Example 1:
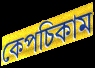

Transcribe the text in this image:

কেপচিকাম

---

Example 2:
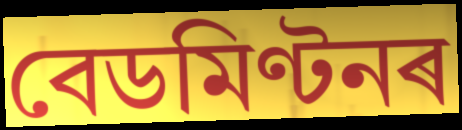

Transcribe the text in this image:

বেডমিণ্টনৰ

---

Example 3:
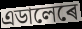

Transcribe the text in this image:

এডালেৰে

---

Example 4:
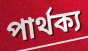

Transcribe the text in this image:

পাৰ্থক্য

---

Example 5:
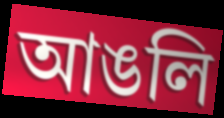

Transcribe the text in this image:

আঙলি